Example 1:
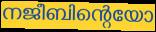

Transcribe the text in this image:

നജീബിന്റെയോ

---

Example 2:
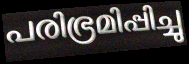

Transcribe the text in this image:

പരിഭ്രമിപ്പിച്ചു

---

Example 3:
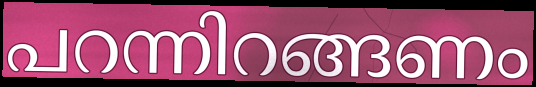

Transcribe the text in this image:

പറന്നിറങ്ങണം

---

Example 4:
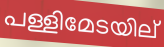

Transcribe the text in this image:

പള്ളിമേടയില്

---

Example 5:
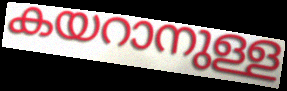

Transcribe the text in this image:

കയറാനുള്ള